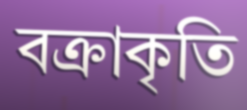
বক্রাকৃতি